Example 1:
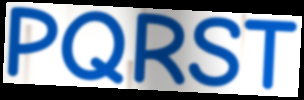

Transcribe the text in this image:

PQRST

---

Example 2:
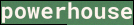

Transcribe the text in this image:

powerhouse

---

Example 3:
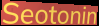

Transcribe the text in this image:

Seotonin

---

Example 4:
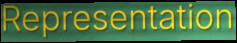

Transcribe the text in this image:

Representation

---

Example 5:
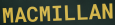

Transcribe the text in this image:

MACMILLAN